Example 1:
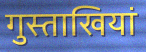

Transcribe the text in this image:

गुस्ताखियां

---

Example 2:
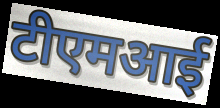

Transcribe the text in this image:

टीएमआई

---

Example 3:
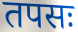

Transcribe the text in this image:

तपसः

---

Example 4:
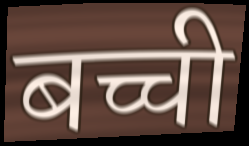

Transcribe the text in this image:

बच्ची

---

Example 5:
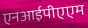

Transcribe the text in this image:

एनआईपीएएम